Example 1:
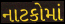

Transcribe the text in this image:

નાટકોમાં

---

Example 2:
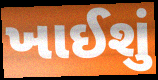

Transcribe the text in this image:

ખાઈશું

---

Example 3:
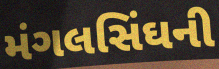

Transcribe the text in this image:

મંગલસિંઘની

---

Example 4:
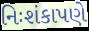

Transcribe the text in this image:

નિઃશંકાપણે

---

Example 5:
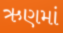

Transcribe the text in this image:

ઋણમાં